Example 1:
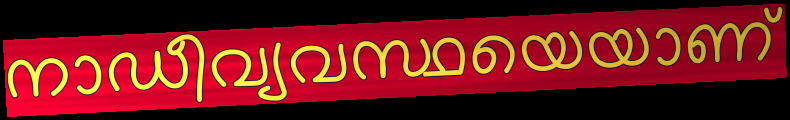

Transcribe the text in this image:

നാഡീവ്യവസ്ഥയെയാണ്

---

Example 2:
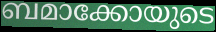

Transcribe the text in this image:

ബമാക്കോയുടെ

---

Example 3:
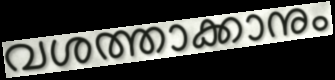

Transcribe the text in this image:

വശത്താക്കാനും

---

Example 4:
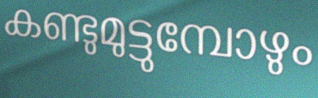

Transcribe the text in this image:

കണ്ടുമുട്ടുമ്പോഴും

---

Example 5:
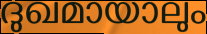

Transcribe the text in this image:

ദുഖമായാലും